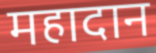
महादान